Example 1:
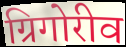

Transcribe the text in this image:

ग्रिगोरीव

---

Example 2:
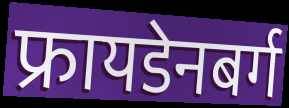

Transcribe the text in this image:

फ्रायडेनबर्ग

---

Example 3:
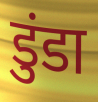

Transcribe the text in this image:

डुंडा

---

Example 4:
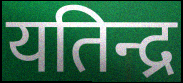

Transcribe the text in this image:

यतिन्द्र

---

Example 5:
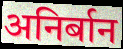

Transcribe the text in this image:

अनिर्बान